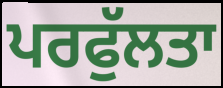
ਪਰਫੁੱਲਤਾ